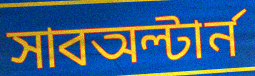
সাবঅল্টার্ন